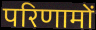
परिणामों